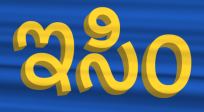
ಇಸಿಂ